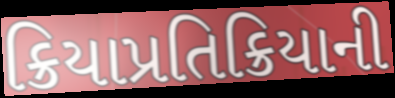
ક્રિયાપ્રતિક્રિયાની